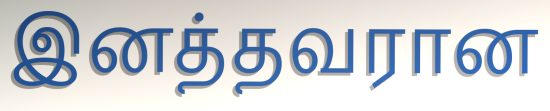
இனத்தவரான